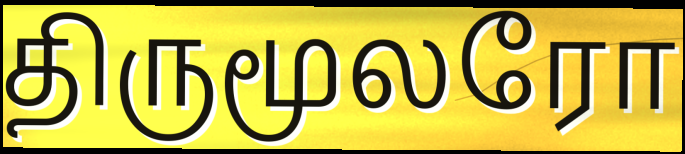
திருமூலரோ